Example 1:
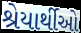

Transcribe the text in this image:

શ્રેયાર્થીઓ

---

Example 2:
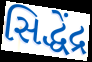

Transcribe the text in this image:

સિદ્ધેંદ્ર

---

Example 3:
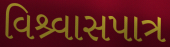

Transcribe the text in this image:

વિશ્ર્વાસપાત્ર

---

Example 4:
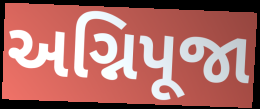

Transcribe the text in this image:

અગ્નિપૂજા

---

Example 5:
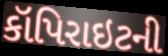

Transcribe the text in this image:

કૉપિરાઇટની